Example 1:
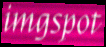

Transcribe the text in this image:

imgspot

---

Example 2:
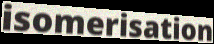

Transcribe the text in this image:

isomerisation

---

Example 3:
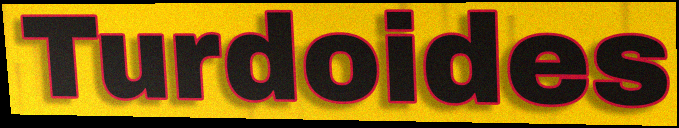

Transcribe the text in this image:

Turdoides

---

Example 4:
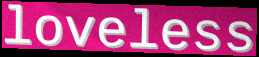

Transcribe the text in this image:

loveless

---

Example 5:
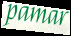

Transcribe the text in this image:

pamar